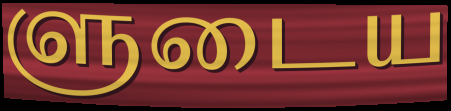
ளுடைய